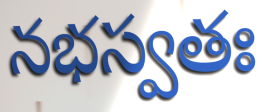
నభస్వతః